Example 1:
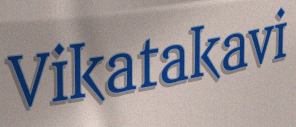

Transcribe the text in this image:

Vikatakavi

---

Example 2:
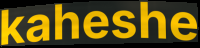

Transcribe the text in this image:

kaheshe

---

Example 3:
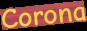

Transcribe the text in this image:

Corona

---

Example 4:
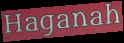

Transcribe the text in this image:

Haganah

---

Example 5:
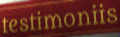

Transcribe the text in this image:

testimoniis